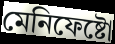
মেনিফেষ্টো